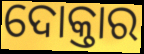
ଦୋକ୍ତାର